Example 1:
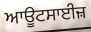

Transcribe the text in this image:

ਆਊਟਸਾਈਜ਼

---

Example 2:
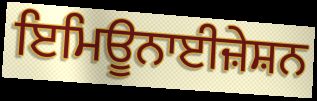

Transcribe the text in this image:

ਇਮਿਊਨਾਈਜ਼ੇਸ਼ਨ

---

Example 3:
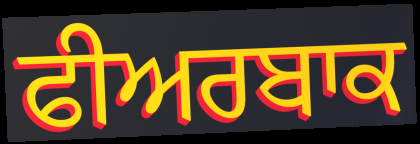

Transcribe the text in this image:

ਫੀਅਰਬਾਕ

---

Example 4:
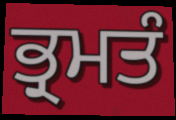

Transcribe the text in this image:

ਭ੍ਰਮਤੰ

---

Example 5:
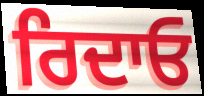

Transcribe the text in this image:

ਰਿਦਾਓ